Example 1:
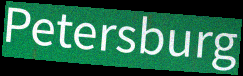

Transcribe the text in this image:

Petersburg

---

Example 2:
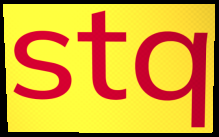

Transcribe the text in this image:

stq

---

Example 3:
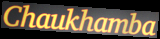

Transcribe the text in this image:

Chaukhamba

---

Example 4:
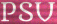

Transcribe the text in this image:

PSU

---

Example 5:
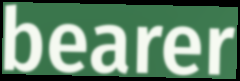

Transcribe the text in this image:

bearer